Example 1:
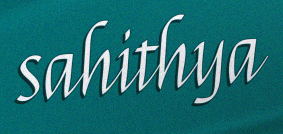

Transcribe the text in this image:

sahithya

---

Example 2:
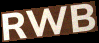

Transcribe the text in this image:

RWB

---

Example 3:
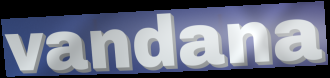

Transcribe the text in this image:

vandana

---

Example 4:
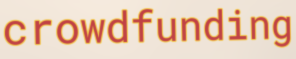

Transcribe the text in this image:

crowdfunding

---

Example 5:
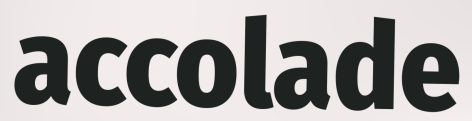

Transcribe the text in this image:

accolade